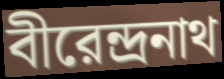
বীরেন্দ্রনাথ